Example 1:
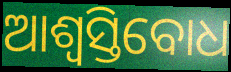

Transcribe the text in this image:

ଆଶ୍ଵସ୍ତିବୋଧ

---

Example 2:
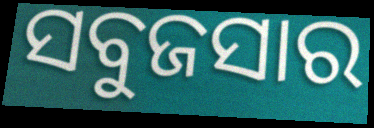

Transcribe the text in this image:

ସବୁଜସାର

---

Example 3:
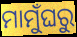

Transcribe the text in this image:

ମାମୁଁଘରୁ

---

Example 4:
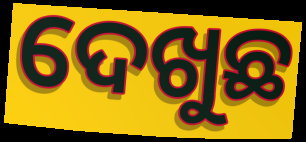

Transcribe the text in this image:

ଦେଖୁଛ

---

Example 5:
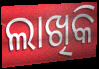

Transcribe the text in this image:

ଲାଖିକି